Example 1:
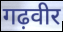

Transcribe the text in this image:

गढ़वीर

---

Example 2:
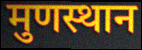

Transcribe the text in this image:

मुणस्थान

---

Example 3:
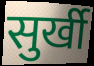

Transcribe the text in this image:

सुर्खी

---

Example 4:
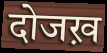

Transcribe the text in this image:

दोजख़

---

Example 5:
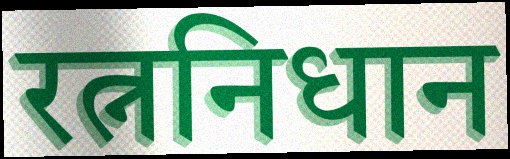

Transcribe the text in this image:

रत्ननिधान